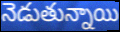
నెడుతున్నాయి